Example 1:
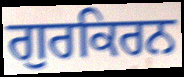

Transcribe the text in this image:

ਗੁਰਕਿਰਨ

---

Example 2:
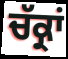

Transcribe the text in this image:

ਚੱਕ੍ਰਾਂ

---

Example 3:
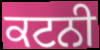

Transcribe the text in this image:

ਕਟਨੀ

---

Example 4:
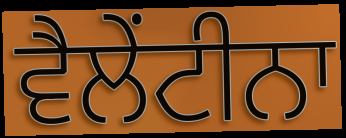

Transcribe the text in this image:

ਵੈਲੇਂਟੀਨਾ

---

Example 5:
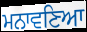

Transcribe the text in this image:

ਮਨਾਵਣਿਆ